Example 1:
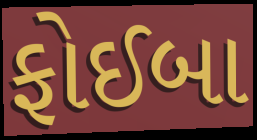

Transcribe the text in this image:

ફોઈબા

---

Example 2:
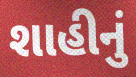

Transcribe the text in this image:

શાહીનું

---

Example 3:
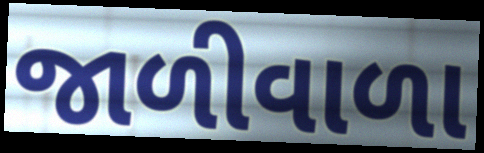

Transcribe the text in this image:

જાળીવાળા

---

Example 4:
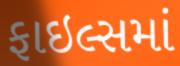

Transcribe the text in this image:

ફાઇલ્સમાં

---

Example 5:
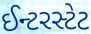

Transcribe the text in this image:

ઈન્ટરસ્ટેટ